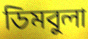
ডিমবুলা